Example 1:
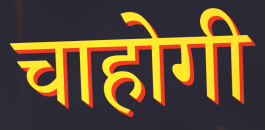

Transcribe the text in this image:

चाहोगी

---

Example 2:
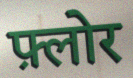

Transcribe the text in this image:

फ़्लोर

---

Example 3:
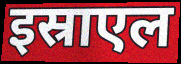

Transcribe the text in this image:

इस्राएल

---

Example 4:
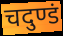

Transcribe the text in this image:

चदुण्डं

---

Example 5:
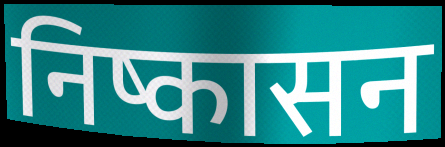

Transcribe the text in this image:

निष्कासन